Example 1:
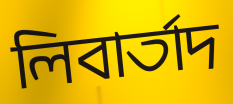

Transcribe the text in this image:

লিবার্তাদ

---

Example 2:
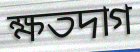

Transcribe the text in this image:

ক্ষতদাগ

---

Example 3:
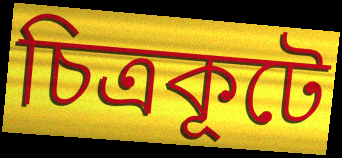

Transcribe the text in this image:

চিত্রকূটে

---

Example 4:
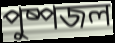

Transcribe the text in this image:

পুষ্পজল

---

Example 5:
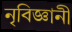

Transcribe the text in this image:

নৃবিজ্ঞানী